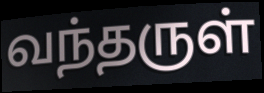
வந்தருள்